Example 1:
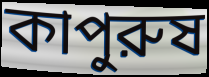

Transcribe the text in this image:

কাপুৰুষ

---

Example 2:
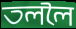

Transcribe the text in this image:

তললৈ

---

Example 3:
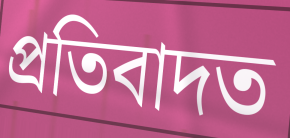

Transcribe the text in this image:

প্ৰতিবাদত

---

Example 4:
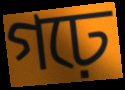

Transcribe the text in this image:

গঢ়ে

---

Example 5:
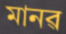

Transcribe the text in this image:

মানৱ